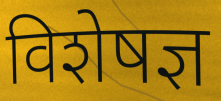
विशेषज्ञ